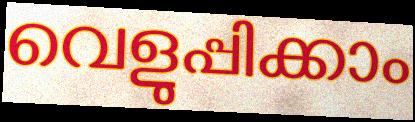
വെളുപ്പിക്കാം